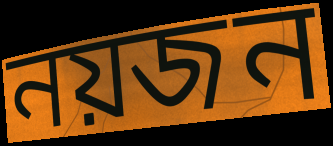
নয়জন